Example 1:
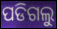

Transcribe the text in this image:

ପଡିଗଲୁ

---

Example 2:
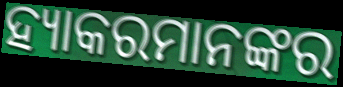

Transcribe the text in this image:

ହ୍ୟାକରମାନଙ୍କର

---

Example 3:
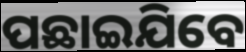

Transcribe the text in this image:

ପଛାଇଯିବେ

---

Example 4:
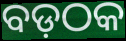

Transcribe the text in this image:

ବଡ଼ଠକ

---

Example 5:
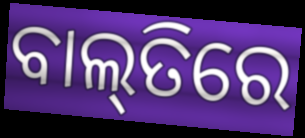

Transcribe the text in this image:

ବାଲ୍‌ତିରେ